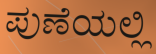
ಪುಣೆಯಲ್ಲಿ